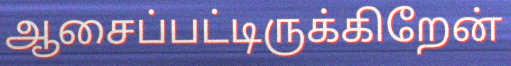
ஆசைப்பட்டிருக்கிறேன்